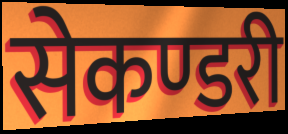
सेकण्‍डरी